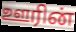
ஊரின்